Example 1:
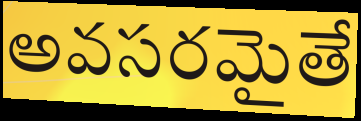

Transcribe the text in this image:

అవసరమైతే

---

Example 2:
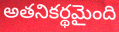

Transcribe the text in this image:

అతనికర్థమైంది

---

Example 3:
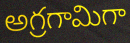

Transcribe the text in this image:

అగ్రగామిగా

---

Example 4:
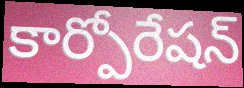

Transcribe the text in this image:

కార్పోరేషన్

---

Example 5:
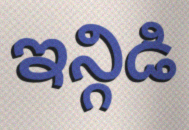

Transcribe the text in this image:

ఇన్గిడి